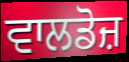
ਵਾਲਡੋਜ਼